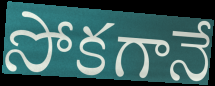
సోకగానే